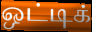
ஒட்டிக்